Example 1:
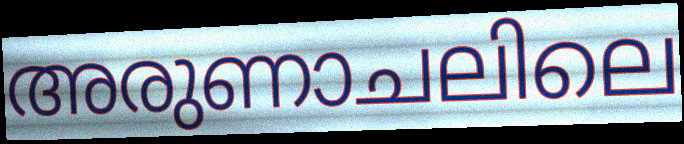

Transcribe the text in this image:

അരുണാചലിലെ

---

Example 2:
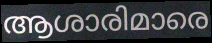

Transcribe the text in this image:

ആശാരിമാരെ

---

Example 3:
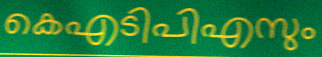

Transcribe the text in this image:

കെഎടിപിഎസും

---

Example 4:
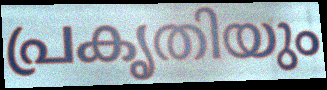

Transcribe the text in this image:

പ്രകൃതിയും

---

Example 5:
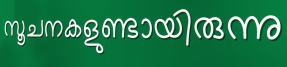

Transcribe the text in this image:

സൂചനകളുണ്ടായിരുന്നു